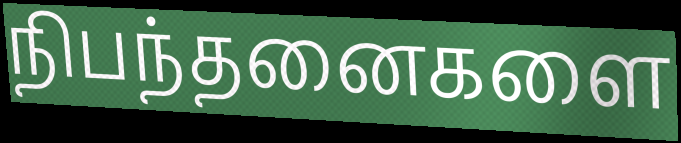
நிபந்தனைகளை